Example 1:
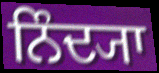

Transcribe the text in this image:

ਨਿੰਦ੍ਯਾ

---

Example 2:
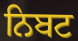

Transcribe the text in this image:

ਨਿਬਟ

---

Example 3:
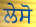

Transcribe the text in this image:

ਲੇਸੋ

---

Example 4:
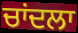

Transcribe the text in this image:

ਚਾਂਦਲਾ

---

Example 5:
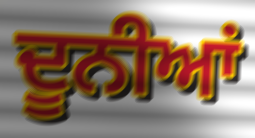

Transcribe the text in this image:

ਦੂਨੀਆਂ